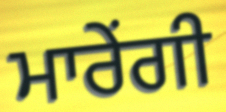
ਮਾਰੇਂਗੀ